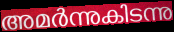
അമർന്നുകിടന്നു